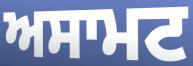
ਅਸਾਮਟ